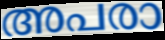
അപരാ